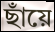
ছাঁয়ে